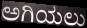
ಅಗಿಯಲು